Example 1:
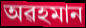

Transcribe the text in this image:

অৱহমান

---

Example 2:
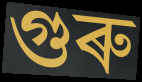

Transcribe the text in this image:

গুৰু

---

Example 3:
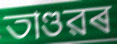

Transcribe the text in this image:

তাণ্ডৱৰ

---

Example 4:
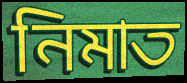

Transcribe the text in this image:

নিমাত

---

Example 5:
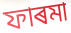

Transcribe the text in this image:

ফাৰমা